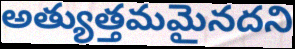
అత్యుత్తమమైనదని